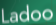
Ladoo